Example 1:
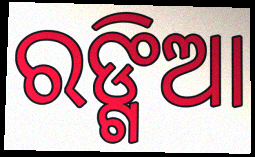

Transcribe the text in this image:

ରଙ୍ଗିଆ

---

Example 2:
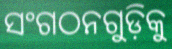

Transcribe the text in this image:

ସଂଗଠନଗୁଡ଼ିକୁ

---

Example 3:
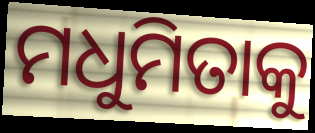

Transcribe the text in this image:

ମଧୁମିତାକୁ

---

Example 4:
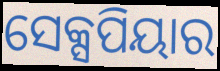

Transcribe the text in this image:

ସେକ୍ସପିୟାର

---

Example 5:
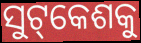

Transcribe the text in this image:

ସୁଟ୍‌କେଶକୁ